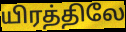
யிரத்திலே